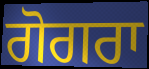
ਗੋਗਰਾ